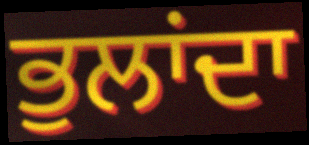
ਭੁਲਾਂਦਾ